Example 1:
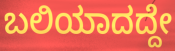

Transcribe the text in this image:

ಬಲಿಯಾದದ್ದೇ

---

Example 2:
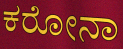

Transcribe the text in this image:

ಕರೋನಾ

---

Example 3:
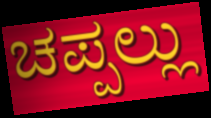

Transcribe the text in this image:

ಚಪ್ಪಲ್ಲು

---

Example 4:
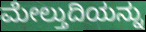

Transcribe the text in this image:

ಮೇಲ್ತುದಿಯನ್ನು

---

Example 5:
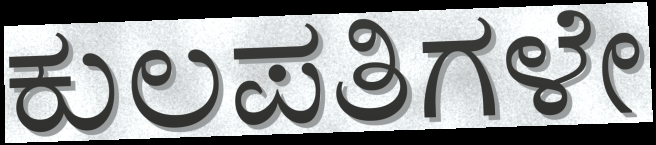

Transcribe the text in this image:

ಕುಲಪತಿಗಳೇ